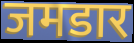
जमडार